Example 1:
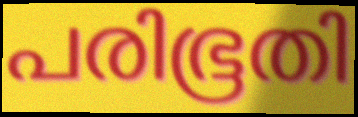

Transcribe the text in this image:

പരിഭൂതി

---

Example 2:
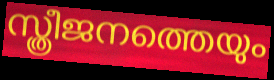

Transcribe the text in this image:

സ്ത്രീജനത്തെയും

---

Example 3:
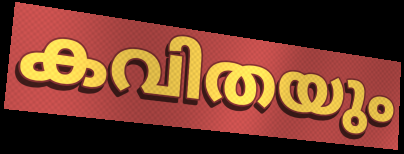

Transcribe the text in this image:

കവിതയും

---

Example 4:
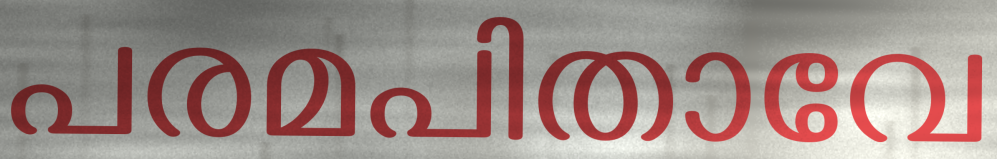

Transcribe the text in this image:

പരമപിതാവേ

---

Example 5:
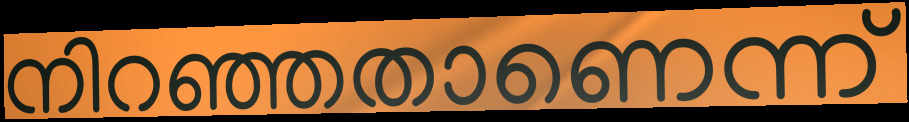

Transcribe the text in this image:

നിറഞ്ഞതാണെന്ന്